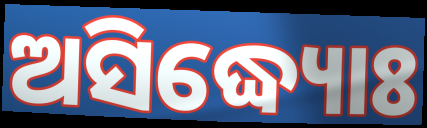
ଅସିଦ୍ଧ୍ୟୋଃ